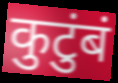
कुटुंबं